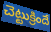
చెట్టుక్రిందే